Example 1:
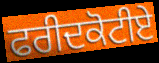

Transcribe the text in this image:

ਫਰੀਦਕੋਟੀਏ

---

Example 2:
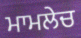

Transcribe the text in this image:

ਮਾਮਲੇਚ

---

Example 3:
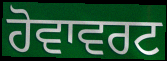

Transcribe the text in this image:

ਹੋਵਾਵਰਟ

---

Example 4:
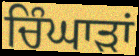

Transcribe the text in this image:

ਚਿੰਘਾੜਾਂ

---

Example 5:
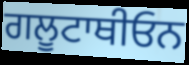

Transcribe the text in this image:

ਗਲੂਟਾਥੀਓਨ